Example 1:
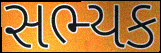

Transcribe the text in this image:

સભ્યક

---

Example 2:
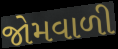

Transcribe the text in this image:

જોમવાળી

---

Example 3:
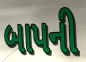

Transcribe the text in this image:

બાપની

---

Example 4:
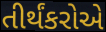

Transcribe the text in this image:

તીર્થંકરોએ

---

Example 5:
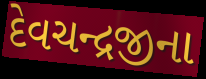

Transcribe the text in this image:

દેવચન્દ્રજીના